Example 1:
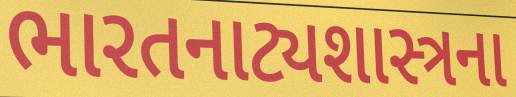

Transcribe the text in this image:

ભારતનાટ્યશાસ્ત્રના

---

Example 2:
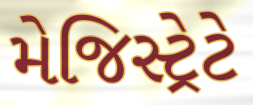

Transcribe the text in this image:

મેજિસ્ટ્રેટે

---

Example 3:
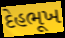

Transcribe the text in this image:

દેહભૂખ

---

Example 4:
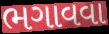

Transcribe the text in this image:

ભગાવવા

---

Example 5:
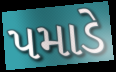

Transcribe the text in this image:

પમાડે